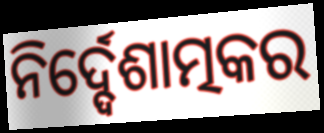
ନିର୍ଦ୍ଦେଶାତ୍ମକର